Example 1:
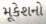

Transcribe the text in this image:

મૂકેશનો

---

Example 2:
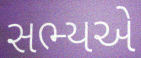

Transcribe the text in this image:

સભ્યએ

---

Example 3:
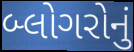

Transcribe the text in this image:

બ્લોગરોનું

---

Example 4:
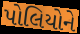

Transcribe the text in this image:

પોલિયોને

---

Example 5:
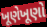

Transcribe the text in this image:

ખૂણેખૂણો